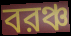
বরঞ্চ